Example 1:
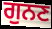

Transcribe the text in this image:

ਗੁਨਣ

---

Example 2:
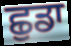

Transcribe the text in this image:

ਛੁਡਾ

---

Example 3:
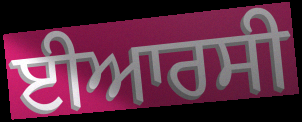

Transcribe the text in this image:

ਈਆਰਸੀ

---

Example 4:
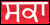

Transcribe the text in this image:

ਸਕਾ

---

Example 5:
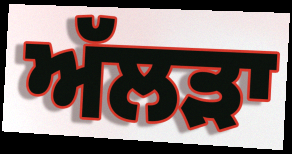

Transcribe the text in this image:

ਅੱਲੜਾ